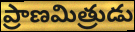
ప్రాణమిత్రుడు